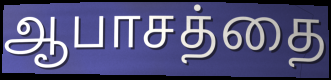
ஆபாசத்தை